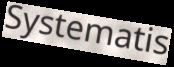
Systematis